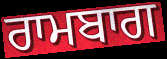
ਰਾਮਬਾਗ